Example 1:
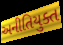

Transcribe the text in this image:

અનીતિયુક્ત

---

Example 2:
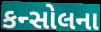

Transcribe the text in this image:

કન્સોલના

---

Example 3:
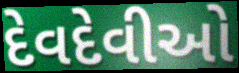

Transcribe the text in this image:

દેવદેવીઓ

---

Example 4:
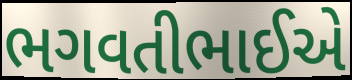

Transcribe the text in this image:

ભગવતીભાઈએ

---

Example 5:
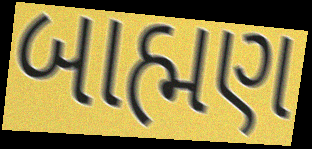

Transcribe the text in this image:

બાહ્મણ